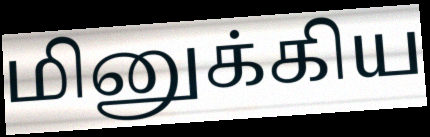
மினுக்கிய